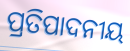
ପ୍ରତିପାଦନୀୟ